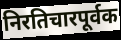
निरतिचारपूर्वक